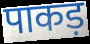
पाकड़